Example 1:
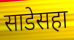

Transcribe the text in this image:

साडेसहा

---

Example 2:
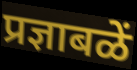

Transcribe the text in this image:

प्रज्ञाबळें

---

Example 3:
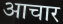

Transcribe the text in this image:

आचार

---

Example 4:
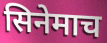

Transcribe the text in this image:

सिनेमाच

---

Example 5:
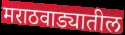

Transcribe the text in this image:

मराठवाड्यातील